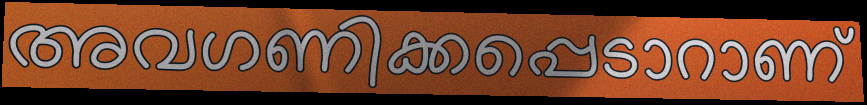
അവഗണിക്കപ്പെടാറാണ്